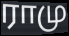
ராமு